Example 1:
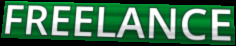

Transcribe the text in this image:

FREELANCE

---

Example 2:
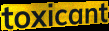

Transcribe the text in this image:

toxicant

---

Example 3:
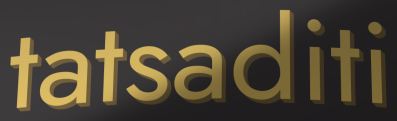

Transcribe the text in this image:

tatsaditi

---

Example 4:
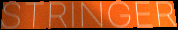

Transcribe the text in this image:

STRINGER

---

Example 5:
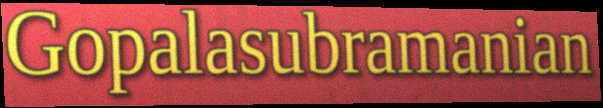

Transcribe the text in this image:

Gopalasubramanian